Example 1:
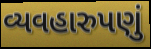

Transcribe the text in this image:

વ્યવહારુપણું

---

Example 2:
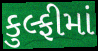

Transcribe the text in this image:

કુલ્ફીમાં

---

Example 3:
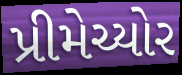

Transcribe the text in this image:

પ્રીમેચ્યોર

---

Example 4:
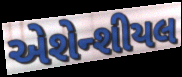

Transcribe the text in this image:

એશેન્શીયલ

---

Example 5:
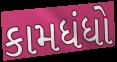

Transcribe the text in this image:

કામધંધો